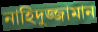
নাহিদুজ্জামান